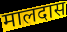
मालदास